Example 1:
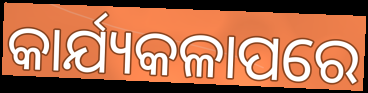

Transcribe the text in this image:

କାର୍ଯ୍ୟକଳାପରେ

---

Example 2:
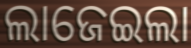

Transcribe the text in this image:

ଲାଜେଇଲା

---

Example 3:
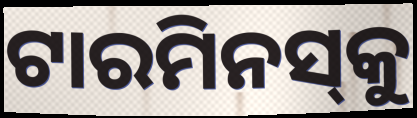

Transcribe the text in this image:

ଟାରମିନସ୍‌କୁ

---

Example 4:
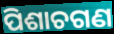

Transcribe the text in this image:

ପିଶାଚଗଣ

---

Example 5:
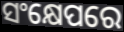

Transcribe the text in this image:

ସଂକ୍ଷେପରେ